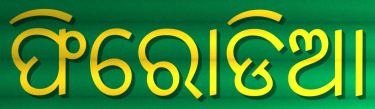
ଫିରୋଡିଆ